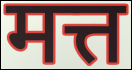
मत्त